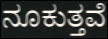
ನೂಕುತ್ತವೆ